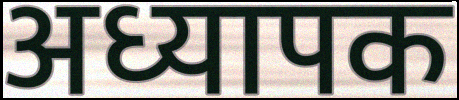
अध्यापक